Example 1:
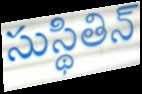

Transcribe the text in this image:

సుస్థితిన్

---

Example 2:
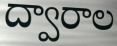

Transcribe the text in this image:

ద్వారాల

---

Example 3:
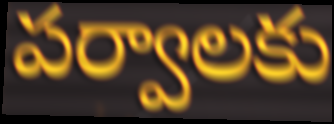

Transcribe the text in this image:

పర్వాలకు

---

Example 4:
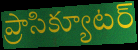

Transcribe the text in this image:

ప్రాసిక్యూటర్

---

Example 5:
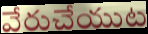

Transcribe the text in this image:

వేరుచేయుట